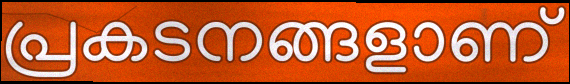
പ്രകടനങ്ങളാണ്